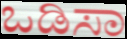
ಒಡಿಸಾ